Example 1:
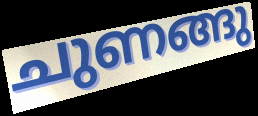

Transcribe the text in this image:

ചുണങ്ങു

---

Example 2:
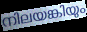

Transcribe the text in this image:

നിലയങ്കിയും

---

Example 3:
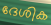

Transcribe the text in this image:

ദേശിക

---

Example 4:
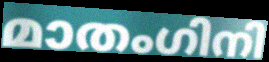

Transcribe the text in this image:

മാതംഗിനി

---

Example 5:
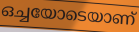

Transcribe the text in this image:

ഒച്ചയോടെയാണ്